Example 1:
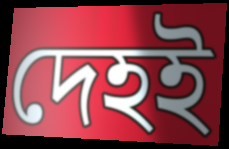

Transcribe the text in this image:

দেহই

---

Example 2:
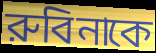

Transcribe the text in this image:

রুবিনাকে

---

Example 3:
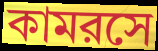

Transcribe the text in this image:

কামরসে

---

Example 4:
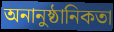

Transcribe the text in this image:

অনানুষ্ঠানিকতা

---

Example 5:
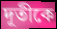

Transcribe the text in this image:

দূতীকে